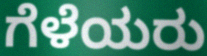
ಗೆಳೆಯರು